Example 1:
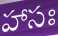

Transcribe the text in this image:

హాసః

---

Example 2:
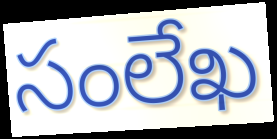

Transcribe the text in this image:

సంలేఖ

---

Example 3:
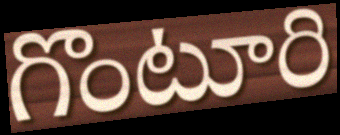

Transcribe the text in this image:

గొంటూరి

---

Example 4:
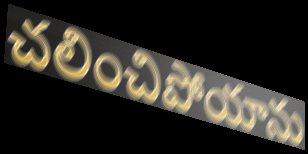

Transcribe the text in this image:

చలించిపోయాను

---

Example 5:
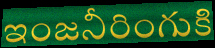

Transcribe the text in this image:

ఇంజనీరింగుకి